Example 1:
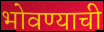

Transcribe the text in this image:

भोवण्याची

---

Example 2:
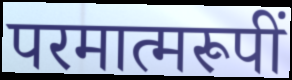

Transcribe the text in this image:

परमात्मरूपीं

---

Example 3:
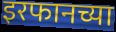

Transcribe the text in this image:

इरफानच्या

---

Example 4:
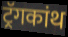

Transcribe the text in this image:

ट्रॅगकांथ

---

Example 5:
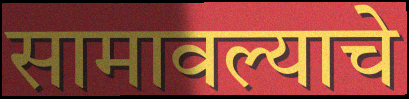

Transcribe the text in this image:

सामावल्याचे